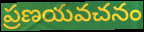
ప్రణయవచనం